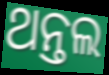
ଥନ୍ତଲ